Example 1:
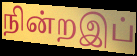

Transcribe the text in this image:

நின்றஇப்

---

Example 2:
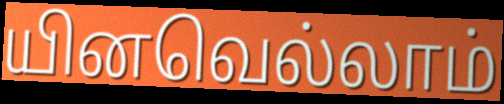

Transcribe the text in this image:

யினவெல்லாம்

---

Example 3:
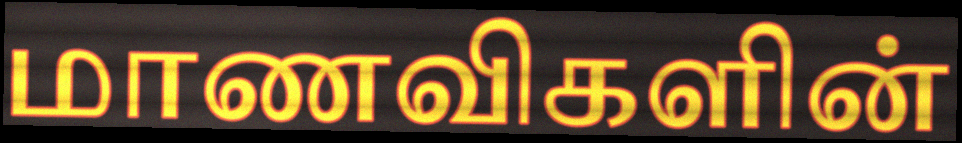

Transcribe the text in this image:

மாணவிகளின்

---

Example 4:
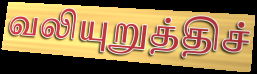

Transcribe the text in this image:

வலியுறுத்திச்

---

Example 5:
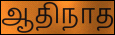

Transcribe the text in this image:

ஆதிநாத